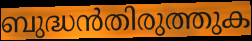
ബുദ്ധൻതിരുത്തുക